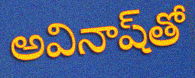
అవినాష్‌తో